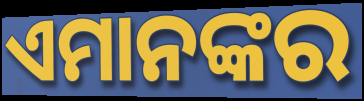
ଏମାନଙ୍କର